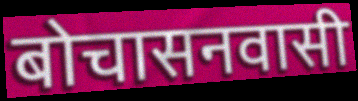
बोचासनवासी